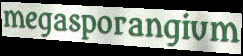
megasporangium